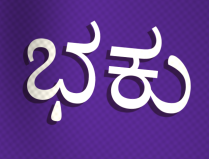
ಭಕು